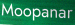
Moopanar